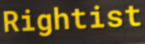
Rightist